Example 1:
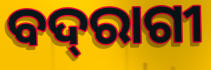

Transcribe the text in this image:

ବଦ୍‌ରାଗୀ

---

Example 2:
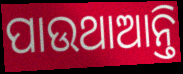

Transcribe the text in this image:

ପାଉଥାଆନ୍ତି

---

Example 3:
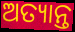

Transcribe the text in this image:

ଅତ୍ୟାନ୍ତ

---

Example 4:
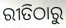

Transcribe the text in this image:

ରୀତିଠାରୁ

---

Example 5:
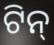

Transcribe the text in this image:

ଟିନ୍